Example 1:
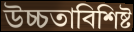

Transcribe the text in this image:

উচ্চতাবিশিষ্ট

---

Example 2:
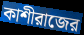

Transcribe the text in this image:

কাশীরাজের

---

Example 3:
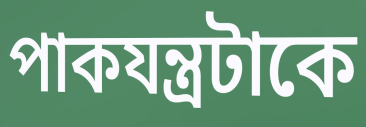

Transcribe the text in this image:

পাকযন্ত্রটাকে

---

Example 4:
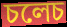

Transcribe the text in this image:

চলেচ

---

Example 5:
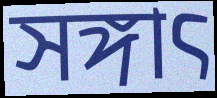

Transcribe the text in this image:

সঙ্গাৎ